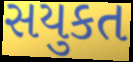
સયુકત